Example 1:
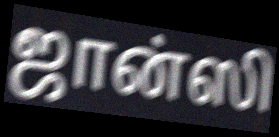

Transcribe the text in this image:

ஜான்ஸி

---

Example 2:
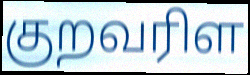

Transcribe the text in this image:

குறவரிள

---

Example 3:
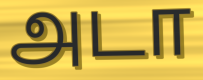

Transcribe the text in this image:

அடா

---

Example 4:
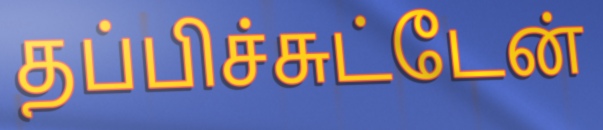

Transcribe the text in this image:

தப்பிச்சுட்டேன்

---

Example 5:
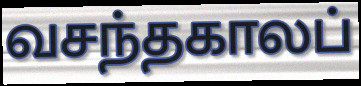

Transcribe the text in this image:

வசந்தகாலப்